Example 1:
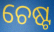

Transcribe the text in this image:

ଚେଷ୍ଟ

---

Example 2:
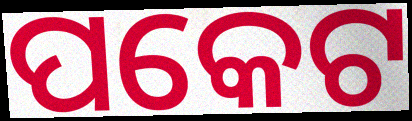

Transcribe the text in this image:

ପକେଟ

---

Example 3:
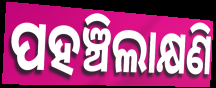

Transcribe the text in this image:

ପହଞ୍ଚିଲାକ୍ଷଣି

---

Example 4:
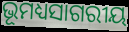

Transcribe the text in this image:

ଭୂମଧ୍ୟସାଗରୀୟ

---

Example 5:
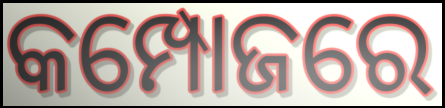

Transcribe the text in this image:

କମ୍ପୋଜରେ